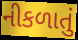
નીકળાતું